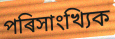
পৰিসাংখ্যিক